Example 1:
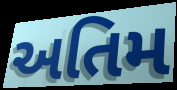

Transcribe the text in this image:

અતિમ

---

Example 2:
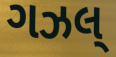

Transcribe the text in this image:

ગઝલ્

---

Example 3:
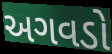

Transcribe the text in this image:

અગવડો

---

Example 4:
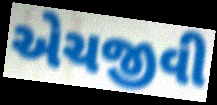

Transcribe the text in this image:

એચજીવી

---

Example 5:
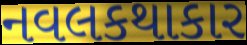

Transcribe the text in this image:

નવલકથાકાર